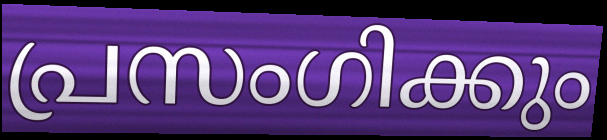
പ്രസംഗിക്കും